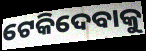
ଟେକିଦେବାକୁ